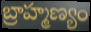
బ్రాహ్మణ్యం